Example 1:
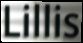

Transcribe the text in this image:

Lillis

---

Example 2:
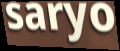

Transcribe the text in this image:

saryo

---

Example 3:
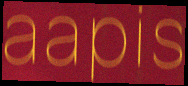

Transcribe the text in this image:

aapis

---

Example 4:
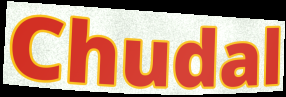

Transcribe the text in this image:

Chudal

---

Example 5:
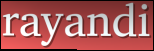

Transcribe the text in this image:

rayandi